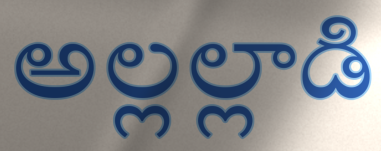
అల్లల్లాడి